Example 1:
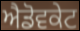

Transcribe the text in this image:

ਐਡੋਵਕੇਟ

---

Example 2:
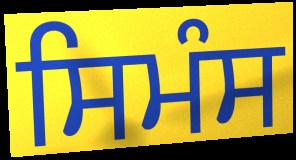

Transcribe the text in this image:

ਸਿਮੰਸ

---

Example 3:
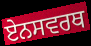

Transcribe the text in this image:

ਏਨਸਵਰਥ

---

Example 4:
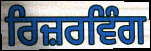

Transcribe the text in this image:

ਰਿਜ਼ਰਵਿੰਗ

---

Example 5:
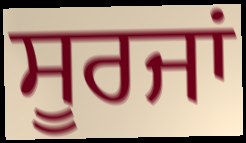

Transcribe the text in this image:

ਸੂਰਜਾਂ